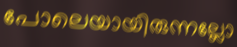
പോലെയായിരുന്നല്ലോ